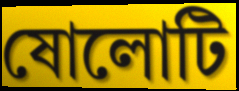
ষোলোটি